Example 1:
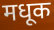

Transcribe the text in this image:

मधूक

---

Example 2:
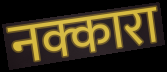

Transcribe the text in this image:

नक्कारा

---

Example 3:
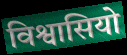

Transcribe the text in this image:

विश्वासियो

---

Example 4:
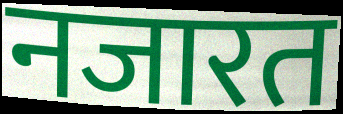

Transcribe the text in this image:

नजारत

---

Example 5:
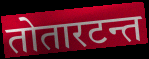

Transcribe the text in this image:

तोतारटन्त